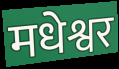
मधेश्वर